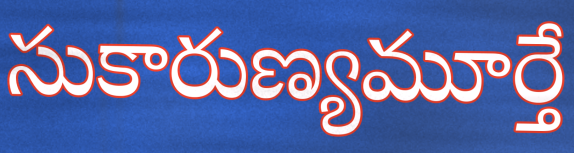
సుకారుణ్యమూర్తే